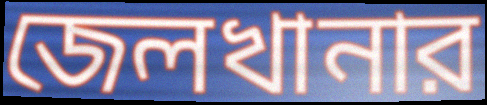
জেলখানার